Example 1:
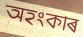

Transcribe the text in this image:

অহংকাৰ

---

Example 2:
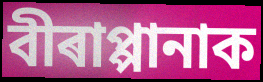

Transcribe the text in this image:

বীৰাপ্পানাক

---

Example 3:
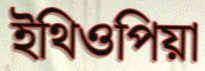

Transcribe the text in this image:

ইথিওপিয়া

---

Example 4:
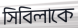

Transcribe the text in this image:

সিবিলাকে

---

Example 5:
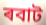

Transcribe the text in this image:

ৰবাট